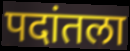
पदांतला